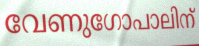
വേണുഗോപാലിന്